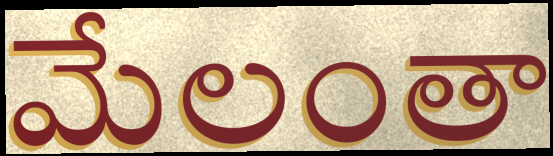
మేలంతా